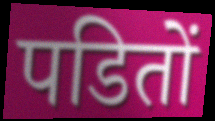
पडितों